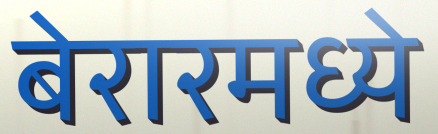
बेरारमध्ये